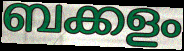
ബക്കളം